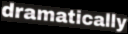
dramatically